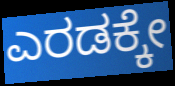
ಎರಡಕ್ಕೇ